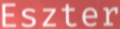
Eszter